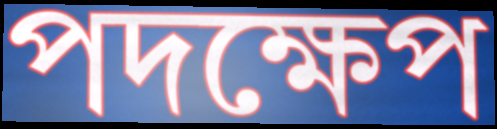
পদক্ষেপ